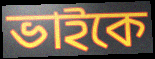
ভাইকে